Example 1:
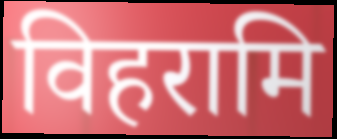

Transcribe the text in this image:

विहरामि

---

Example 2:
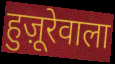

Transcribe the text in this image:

हुज़ूरेवाला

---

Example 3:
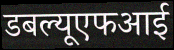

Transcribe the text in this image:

डबल्यूएफआई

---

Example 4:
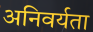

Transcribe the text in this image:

अनिवर्यता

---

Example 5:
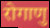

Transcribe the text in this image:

रोगाणु